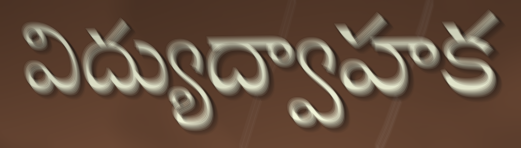
విద్యుద్వాహక